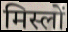
मिस्लों